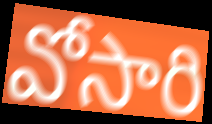
వోసారి